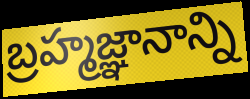
బ్రహ్మజ్ఞానాన్ని